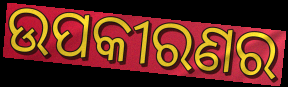
ଉପକୀରଣର